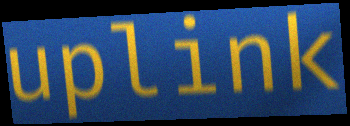
uplink